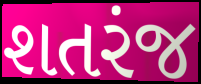
શતરંજ